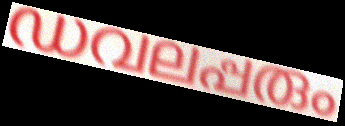
ഡവലപ്പരും